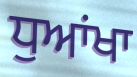
ਧੁਆਂਖਾ